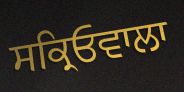
ਸਕ੍ਰਿਓਵਾਲਾ